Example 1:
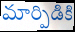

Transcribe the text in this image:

మార్పిడికి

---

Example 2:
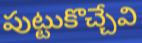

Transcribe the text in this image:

పుట్టుకొచ్చేవి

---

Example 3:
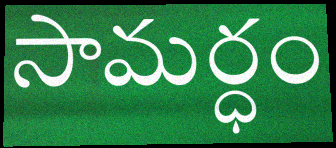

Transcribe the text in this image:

సామర్ధం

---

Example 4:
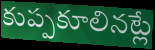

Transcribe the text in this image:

కుప్పకూలినట్లే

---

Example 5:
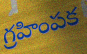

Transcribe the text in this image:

గ్రహింపక